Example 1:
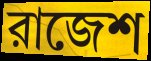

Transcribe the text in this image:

রাজেশ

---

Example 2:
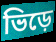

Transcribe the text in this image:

ভিড়ে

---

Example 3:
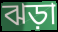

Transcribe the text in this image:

ঝড়া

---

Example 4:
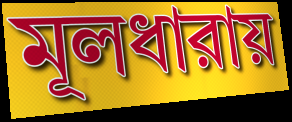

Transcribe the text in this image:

মূলধারায়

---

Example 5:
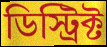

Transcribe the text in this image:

ডিস্ট্রিক্ট